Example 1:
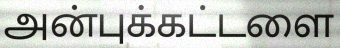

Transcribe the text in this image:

அன்புக்கட்டளை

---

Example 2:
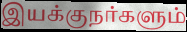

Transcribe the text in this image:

இயக்குநர்களும்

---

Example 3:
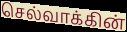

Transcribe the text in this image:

செல்வாக்கின்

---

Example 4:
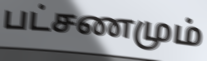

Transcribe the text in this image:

பட்சணமும்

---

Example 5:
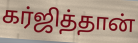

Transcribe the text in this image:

கர்ஜித்தான்